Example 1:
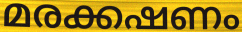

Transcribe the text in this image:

മരക്കഷണം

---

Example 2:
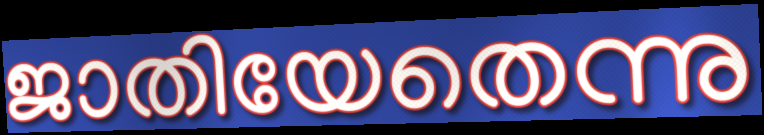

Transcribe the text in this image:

ജാതിയേതെന്നു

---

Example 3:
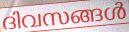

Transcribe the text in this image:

ദിവസങ്ങൾ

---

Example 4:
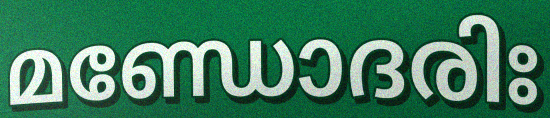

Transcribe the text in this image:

മണ്ഡോദരിഃ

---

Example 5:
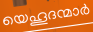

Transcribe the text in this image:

യെഹൂദന്മാർ